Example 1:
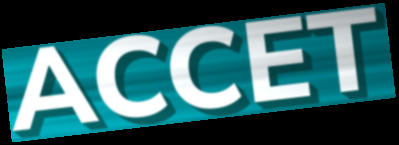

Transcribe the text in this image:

ACCET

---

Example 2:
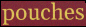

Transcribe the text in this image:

pouches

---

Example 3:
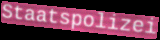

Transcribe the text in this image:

Staatspolizei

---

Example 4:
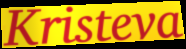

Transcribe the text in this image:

Kristeva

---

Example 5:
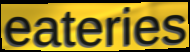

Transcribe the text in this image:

eateries